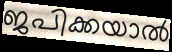
ജപിക്കയാൽ